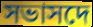
সভাসদে